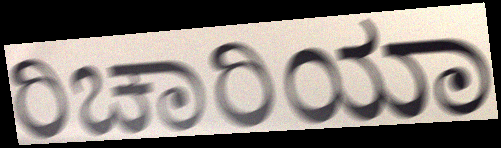
ರಿಚಾರಿಯಾ